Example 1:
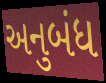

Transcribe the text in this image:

અનુબંધ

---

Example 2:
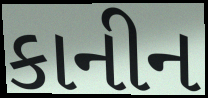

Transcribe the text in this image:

કાનીન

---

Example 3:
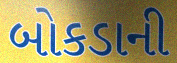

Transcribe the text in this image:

બોકડાની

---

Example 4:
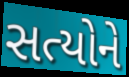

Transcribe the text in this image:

સત્યોને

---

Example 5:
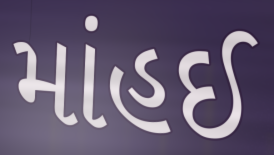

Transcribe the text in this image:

માંહઈ